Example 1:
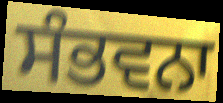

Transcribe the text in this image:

ਸੰਭਵਨਾ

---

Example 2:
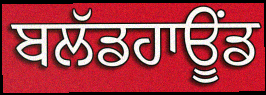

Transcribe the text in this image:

ਬਲੱਡਹਾਊਂਡ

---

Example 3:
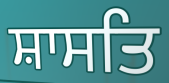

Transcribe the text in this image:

ਸ਼ਾਸਤਿ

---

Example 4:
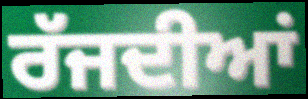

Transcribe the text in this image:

ਰੱਜਦੀਆਂ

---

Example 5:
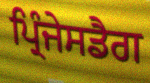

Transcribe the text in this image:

ਪ੍ਰਿੰਜੇਸਡੈਗ